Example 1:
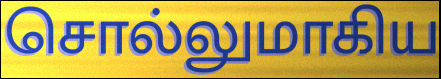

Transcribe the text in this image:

சொல்லுமாகிய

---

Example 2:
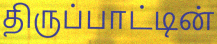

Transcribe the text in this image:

திருப்பாட்டின்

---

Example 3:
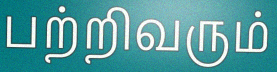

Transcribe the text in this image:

பற்றிவரும்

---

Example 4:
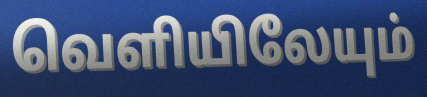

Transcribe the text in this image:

வெளியிலேயும்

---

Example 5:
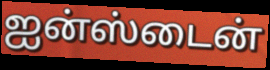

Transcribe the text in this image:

ஐன்ஸ்டைன்